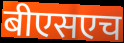
बीएसएच